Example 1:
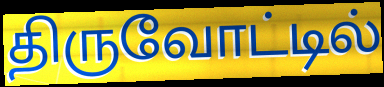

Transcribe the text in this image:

திருவோட்டில்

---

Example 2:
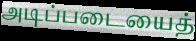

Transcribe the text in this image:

அடிப்படையைத்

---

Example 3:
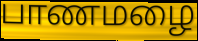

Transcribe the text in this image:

பாணமழை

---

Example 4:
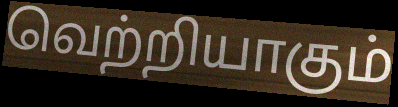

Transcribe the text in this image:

வெற்றியாகும்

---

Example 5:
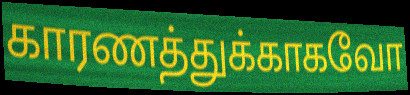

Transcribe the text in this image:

காரணத்துக்காகவோ